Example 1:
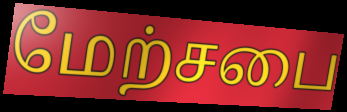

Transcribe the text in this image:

மேற்சபை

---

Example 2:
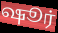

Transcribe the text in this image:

ஷூர்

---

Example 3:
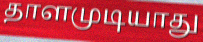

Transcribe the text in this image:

தாளமுடியாது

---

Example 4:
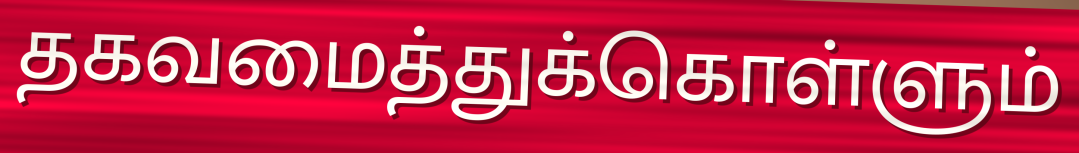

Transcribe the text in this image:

தகவமைத்துக்கொள்ளும்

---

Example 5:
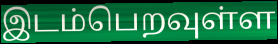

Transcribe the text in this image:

இடம்பெறவுள்ள